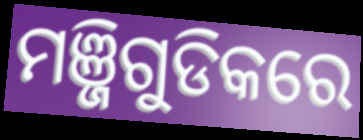
ମଞ୍ଜିଗୁଡିକରେ